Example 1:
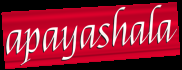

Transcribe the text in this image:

apayashala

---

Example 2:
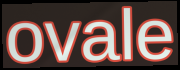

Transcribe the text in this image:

ovale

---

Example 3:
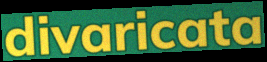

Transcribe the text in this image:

divaricata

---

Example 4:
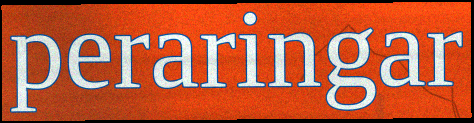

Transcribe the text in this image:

peraringar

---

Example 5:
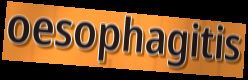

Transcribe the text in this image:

oesophagitis